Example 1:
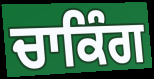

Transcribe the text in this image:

ਚਾਕਿੰਗ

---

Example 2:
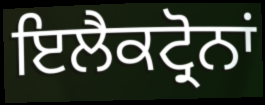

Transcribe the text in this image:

ਇਲੈਕਟ੍ਰੋਨਾਂ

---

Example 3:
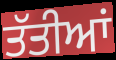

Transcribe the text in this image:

ਤੱਤੀਆਂ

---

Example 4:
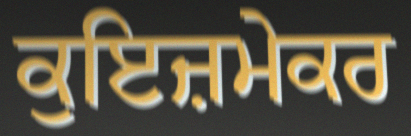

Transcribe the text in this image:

ਕੁਇਜ਼ਮੇਕਰ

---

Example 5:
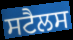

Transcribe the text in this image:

ਸਟੈਲਸ